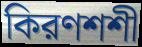
কিরণশশী